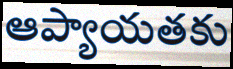
ఆప్యాయతకు